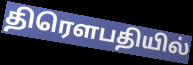
திரௌபதியில்